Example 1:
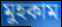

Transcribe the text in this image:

মুহকাম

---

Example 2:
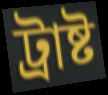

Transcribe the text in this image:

ট্ৰাষ্ট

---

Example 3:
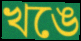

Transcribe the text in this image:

খঙে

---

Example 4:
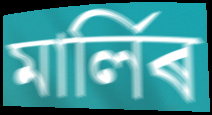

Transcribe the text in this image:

মাৰ্লিৰ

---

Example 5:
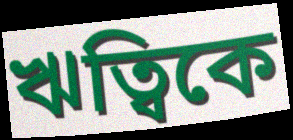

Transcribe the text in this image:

ঋত্বিকে